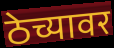
ठेच्यावर